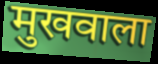
मुखवाला